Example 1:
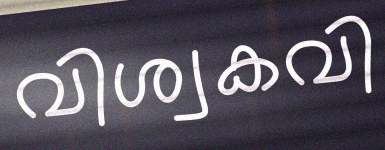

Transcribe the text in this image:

വിശ്വകവി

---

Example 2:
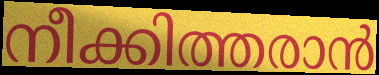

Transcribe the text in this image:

നീക്കിത്തരാൻ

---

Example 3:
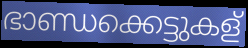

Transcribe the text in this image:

ഭാണ്ഡക്കെട്ടുകള്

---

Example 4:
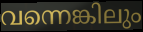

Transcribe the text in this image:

വന്നെങ്കിലും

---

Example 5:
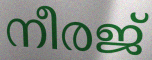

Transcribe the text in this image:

നീരജ്